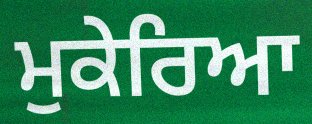
ਮੁਕੇਰਿਆ